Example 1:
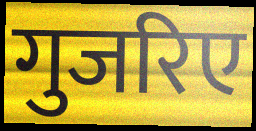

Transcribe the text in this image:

गुजरिए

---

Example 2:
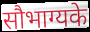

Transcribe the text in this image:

सौभाग्यके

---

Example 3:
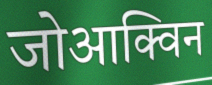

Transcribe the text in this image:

जोआक्विन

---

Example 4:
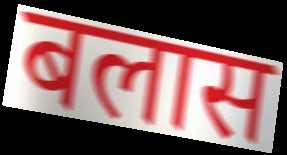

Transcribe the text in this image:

बलास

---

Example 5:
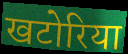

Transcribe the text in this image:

खटोरिया